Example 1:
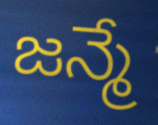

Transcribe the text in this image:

జన్మే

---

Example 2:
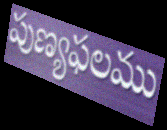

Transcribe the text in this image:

పుణ్యఫలము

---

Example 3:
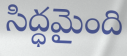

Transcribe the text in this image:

సిద్ధమైంది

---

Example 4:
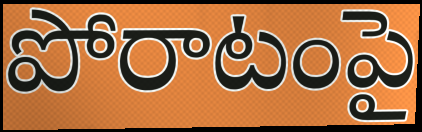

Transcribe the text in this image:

పోరాటంపై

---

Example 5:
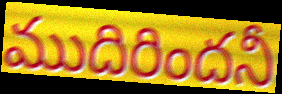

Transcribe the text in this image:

ముదిరిందనీ